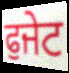
ਫੁਜੇਟ